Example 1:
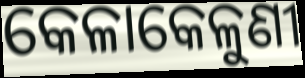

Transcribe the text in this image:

କେଳାକେଳୁଣୀ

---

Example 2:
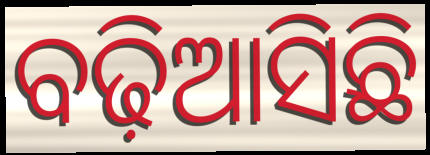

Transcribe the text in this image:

ବଢ଼ିଆସିଛି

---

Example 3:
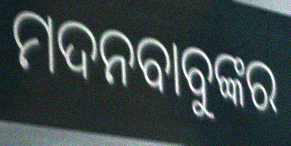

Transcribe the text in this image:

ମଦନବାବୁଙ୍କର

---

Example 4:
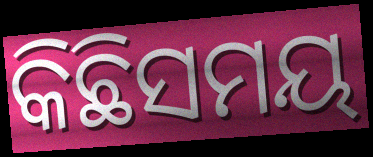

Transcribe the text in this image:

କିଛିସମୟ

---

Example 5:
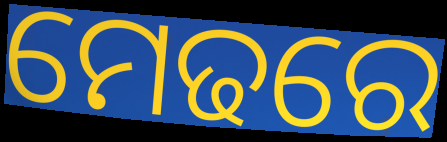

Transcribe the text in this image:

ମେଢରେ